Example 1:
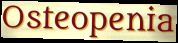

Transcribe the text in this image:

Osteopenia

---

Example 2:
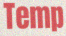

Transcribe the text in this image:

Temp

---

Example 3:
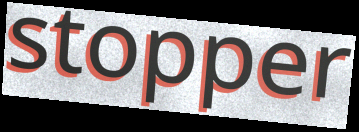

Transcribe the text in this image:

stopper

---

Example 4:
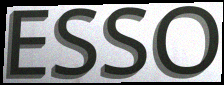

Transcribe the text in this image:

ESSO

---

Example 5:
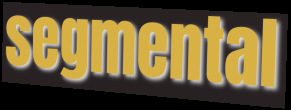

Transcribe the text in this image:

segmental